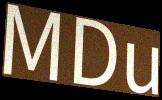
MDu